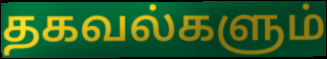
தகவல்களும்